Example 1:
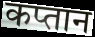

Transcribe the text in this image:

कप्‍तान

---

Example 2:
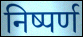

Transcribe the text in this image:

निष्पर्ण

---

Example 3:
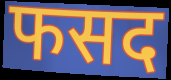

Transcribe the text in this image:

फसद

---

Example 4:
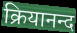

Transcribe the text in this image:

क्रियानन्द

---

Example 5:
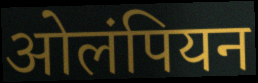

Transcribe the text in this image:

ओलंपियन